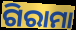
ଗିରାମା